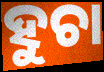
ହୁଚା